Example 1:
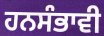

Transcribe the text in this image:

ਹਨਸੰਭਾਵੀ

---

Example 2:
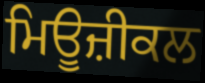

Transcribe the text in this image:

ਮਿਊਜ਼ੀਕਲ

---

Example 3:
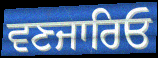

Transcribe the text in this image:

ਵਣਜਾਰਿਓ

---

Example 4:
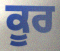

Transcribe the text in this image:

ਕੂਰ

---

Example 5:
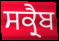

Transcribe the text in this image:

ਸਕ੍ਰੈਬ